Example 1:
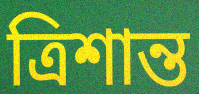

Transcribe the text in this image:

ত্রিশান্ত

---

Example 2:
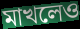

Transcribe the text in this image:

মাখলেও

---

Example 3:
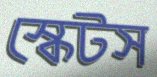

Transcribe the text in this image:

স্কেটস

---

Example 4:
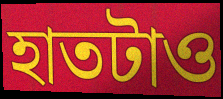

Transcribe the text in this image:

হাতটাও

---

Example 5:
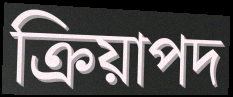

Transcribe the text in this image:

ক্রিয়াপদ